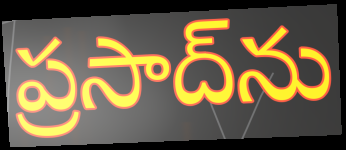
ప్రసాద్‌ను